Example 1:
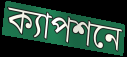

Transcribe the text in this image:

ক্যাপশনে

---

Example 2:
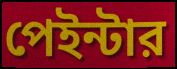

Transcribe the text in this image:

পেইন্টার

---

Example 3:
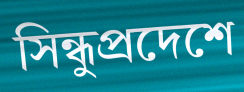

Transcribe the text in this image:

সিন্ধুপ্রদেশে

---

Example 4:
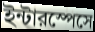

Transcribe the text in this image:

ইন্টারস্পেসে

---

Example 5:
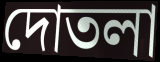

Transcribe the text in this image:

দোতলা